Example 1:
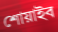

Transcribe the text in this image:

শোয়াইব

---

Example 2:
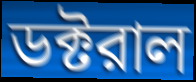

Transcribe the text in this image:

ডক্টরাল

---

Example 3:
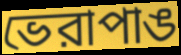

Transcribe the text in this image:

ভেরাপাঙ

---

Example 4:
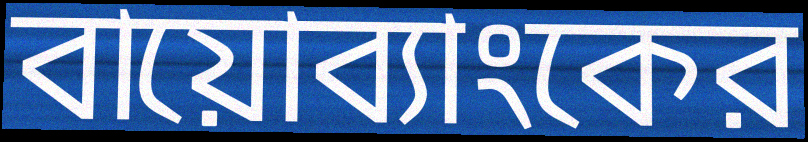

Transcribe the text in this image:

বায়োব্যাংকের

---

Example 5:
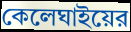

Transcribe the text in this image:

কেলেঘাইয়ের